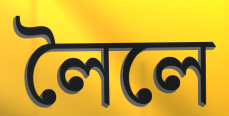
লৈলে